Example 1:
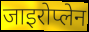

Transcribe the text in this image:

जाइरोप्लेन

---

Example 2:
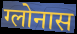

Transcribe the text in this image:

ग्लोनास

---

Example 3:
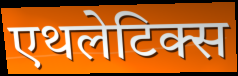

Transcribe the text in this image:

एथलेटिक्‍स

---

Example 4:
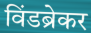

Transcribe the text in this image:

विंडब्रेकर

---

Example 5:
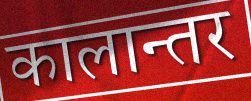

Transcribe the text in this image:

कालान्तर